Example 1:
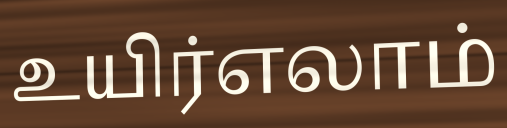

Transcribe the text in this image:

உயிர்எலாம்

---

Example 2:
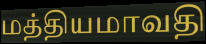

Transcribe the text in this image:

மத்தியமாவதி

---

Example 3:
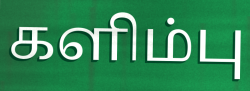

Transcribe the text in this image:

களிம்பு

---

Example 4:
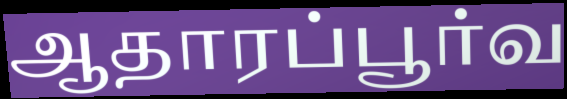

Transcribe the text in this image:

ஆதாரப்பூர்வ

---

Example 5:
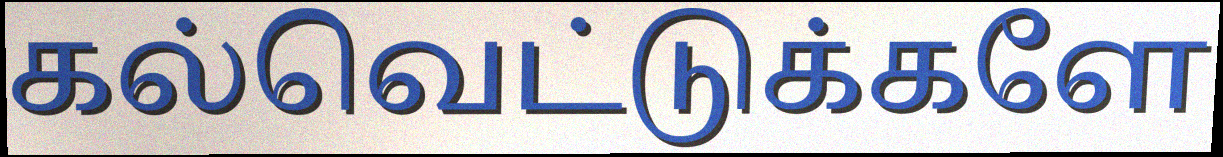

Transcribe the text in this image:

கல்வெட்டுக்களே